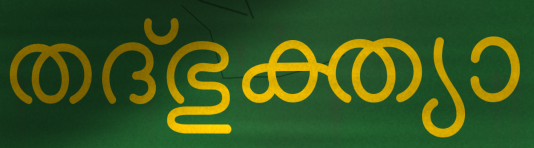
തദ്ഭുക്ത്യാ